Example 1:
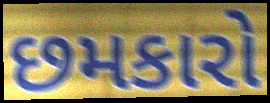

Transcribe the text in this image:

છમકારો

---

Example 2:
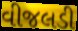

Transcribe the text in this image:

વીજલડી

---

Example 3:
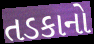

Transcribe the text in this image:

તડકાનો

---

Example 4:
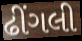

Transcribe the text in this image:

ઢીંગલી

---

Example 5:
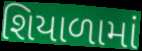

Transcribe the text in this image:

શિયાળામાં